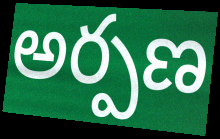
అర్పణ